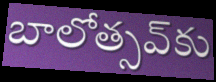
బాలోత్సవ్‌కు